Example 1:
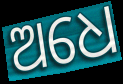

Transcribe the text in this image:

ଅଧେ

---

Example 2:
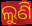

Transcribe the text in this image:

ଲୁଣି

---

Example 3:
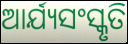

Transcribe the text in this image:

ଆର୍ଯ୍ୟସଂସ୍କୃତି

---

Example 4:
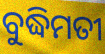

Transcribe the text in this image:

ବୁଦ୍ଧିମତୀ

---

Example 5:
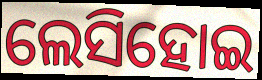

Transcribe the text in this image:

ଲେସିହୋଇ